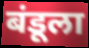
बंडूला